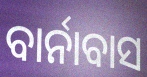
ବାର୍ନାବାସ